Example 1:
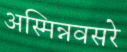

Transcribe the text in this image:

अस्मिन्नवसरे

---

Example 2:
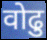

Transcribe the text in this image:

वोढु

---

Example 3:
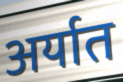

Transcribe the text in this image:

अर्यात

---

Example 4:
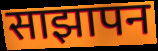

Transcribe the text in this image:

साझापन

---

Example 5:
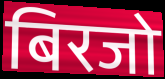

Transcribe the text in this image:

बिरजो